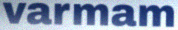
varmam